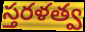
స్తరళత్వ